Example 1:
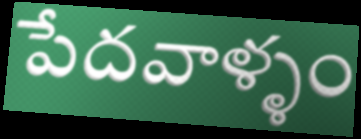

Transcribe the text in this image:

పేదవాళ్ళం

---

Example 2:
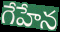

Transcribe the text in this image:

గేహేన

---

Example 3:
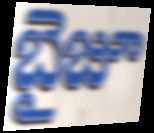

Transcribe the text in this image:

బైజూ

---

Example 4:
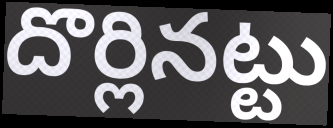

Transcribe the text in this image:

దొర్లినట్టు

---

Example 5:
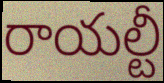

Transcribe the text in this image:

రాయల్టీ